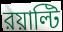
রয়াল্টি